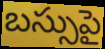
బస్సుపై